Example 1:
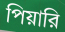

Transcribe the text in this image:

পিয়ারি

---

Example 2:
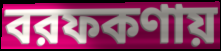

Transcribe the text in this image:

বরফকণায়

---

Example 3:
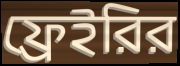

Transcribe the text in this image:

ফ্রেইরির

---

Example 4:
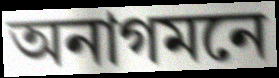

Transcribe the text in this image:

অনাগমনে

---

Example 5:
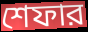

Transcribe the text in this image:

শেফার